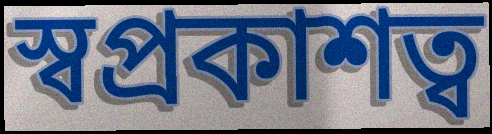
স্বপ্রকাশত্ব